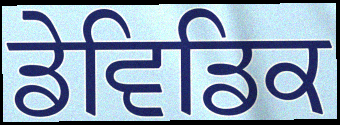
ਡੇਵਿਡਿਕ